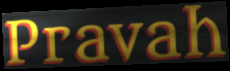
Pravah